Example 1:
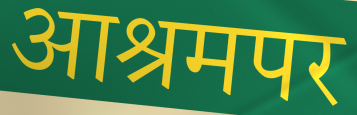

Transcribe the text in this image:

आश्रमपर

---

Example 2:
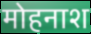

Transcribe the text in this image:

मोहनाश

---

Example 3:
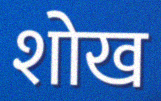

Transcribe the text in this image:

शोख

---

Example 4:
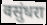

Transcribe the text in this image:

वसुंधरा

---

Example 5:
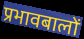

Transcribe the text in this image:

प्रभावबालों